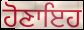
ਹੋਣਾਇਹ